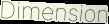
Dimension